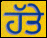
ਹੱਤੇ